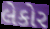
લેકોર